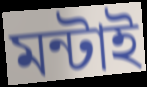
মন্টাই